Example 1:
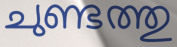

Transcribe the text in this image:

ചുണ്ടത്തു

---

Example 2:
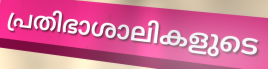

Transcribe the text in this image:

പ്രതിഭാശാലികളുടെ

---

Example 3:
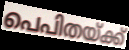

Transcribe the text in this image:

പെപിതയ്ക്ക്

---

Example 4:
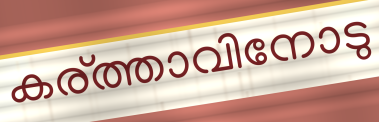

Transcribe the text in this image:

കര്ത്താവിനോടു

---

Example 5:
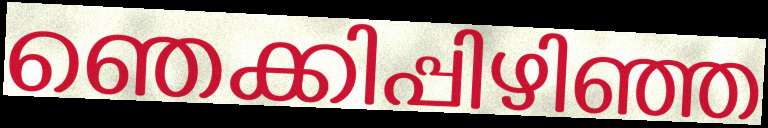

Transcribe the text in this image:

ഞെക്കിപ്പിഴിഞ്ഞ